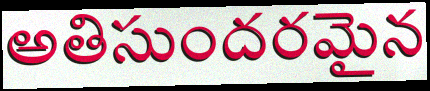
అతిసుందరమైన